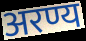
अरण्य